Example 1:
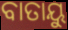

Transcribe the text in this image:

ବାତାୟୁ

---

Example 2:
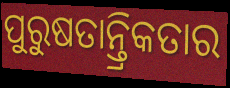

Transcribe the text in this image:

ପୁରୁଷତାନ୍ତ୍ରିକତାର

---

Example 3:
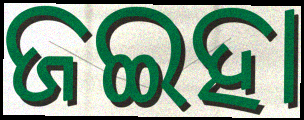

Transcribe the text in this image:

ଜଇହା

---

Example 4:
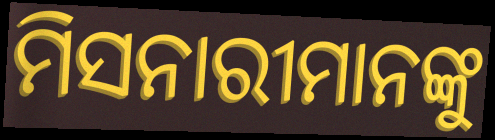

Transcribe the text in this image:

ମିସନାରୀମାନଙ୍କୁ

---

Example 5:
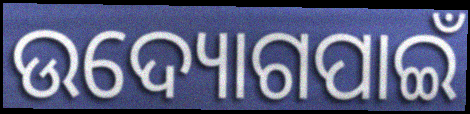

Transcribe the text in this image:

ଉଦ୍ୟୋଗପାଇଁ